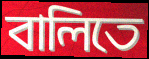
বালিতে